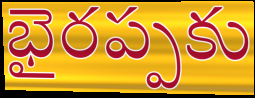
భైరప్పకు